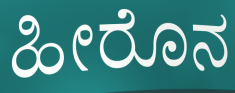
ಹೀರೊನ